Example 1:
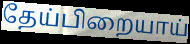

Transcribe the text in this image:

தேய்பிறையாய்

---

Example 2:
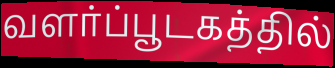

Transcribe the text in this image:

வளர்ப்பூடகத்தில்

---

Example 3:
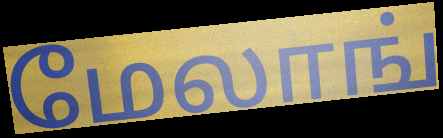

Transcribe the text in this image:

மேலாங்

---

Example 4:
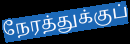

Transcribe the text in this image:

நேரத்துக்குப்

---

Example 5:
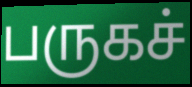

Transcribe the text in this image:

பருகச்